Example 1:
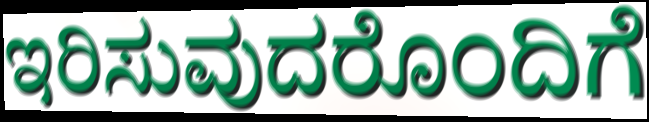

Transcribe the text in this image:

ಇರಿಸುವುದರೊಂದಿಗೆ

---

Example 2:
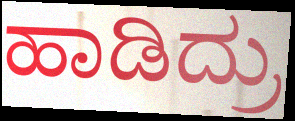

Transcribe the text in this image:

ಹಾಡಿದ್ರು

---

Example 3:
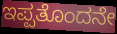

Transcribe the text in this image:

ಇಪ್ಪತೊಂದನೇ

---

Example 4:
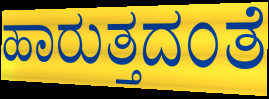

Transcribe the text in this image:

ಹಾರುತ್ತದಂತೆ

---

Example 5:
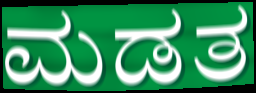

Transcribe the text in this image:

ಮಡತ